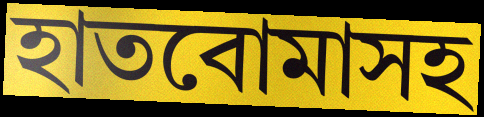
হাতবোমাসহ